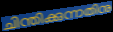
ചിന്തിക്കുന്നതിനു